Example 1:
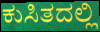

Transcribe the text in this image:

ಕುಸಿತದಲ್ಲಿ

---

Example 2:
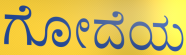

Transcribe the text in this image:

ಗೋದೆಯ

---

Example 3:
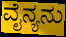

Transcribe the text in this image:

ವೈನ್ಯನು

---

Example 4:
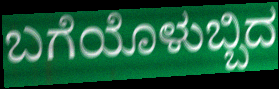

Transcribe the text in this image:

ಬಗೆಯೊಳುಬ್ಬಿದ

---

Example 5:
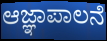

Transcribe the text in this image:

ಆಜ್ಞಾಪಾಲನೆ